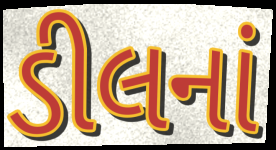
ડીલનાં